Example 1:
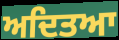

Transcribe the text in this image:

ਅਦਿਤਆ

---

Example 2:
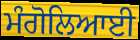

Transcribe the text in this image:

ਮੰਗੋਲਿਆਈ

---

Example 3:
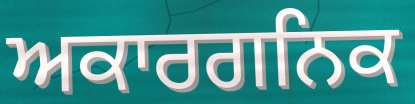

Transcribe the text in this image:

ਅਕਾਰਗਨਿਕ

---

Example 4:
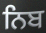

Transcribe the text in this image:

ਨਿਬ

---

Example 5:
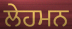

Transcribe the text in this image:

ਲੇਹਮਨ